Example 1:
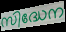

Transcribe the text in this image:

സിദ്ധേന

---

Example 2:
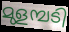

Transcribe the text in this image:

മുളമ്പടി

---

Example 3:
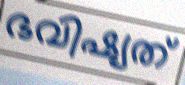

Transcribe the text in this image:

ഭവിഷ്യത്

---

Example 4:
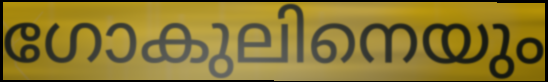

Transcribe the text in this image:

ഗോകുലിനെയും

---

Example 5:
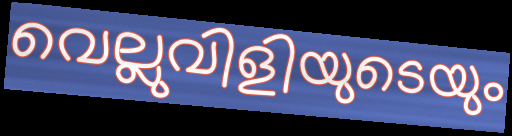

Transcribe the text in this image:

വെല്ലുവിളിയുടെയും